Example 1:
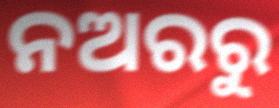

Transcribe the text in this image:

ନଅରରୁ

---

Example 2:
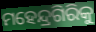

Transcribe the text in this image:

ମହେନ୍ଦ୍ରଗିରିକୁ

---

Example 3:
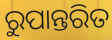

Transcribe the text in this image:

ରୁପାନ୍ତରିତ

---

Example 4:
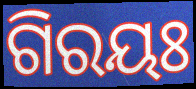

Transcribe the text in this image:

ଗିରୟଃ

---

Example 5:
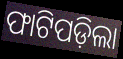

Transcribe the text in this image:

ଫାଟିପଡ଼ିଲା